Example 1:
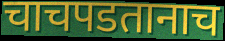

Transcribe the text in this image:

चाचपडतानाच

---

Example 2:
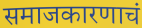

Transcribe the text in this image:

समाजकारणाचं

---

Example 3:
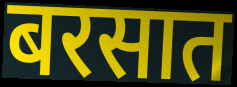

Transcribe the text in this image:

बरसात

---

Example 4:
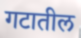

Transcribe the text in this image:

गटातील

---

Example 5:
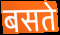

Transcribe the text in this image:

बसते